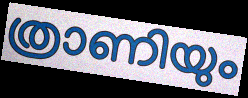
ത്രാണിയും